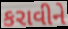
કરાવીને